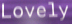
Lovely